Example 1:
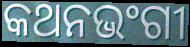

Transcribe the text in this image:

କଥନଭଂଗୀ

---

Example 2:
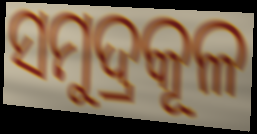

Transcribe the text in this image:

ସମୁଦ୍ରକୂଳ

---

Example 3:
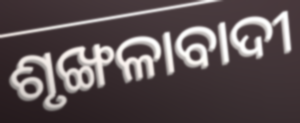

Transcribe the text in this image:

ଶୃଙ୍ଖଳାବାଦୀ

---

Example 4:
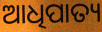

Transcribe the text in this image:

ଆଧିପାତ୍ୟ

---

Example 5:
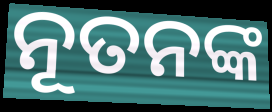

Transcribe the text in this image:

ନୂତନଙ୍କ